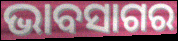
ଭାବସାଗର